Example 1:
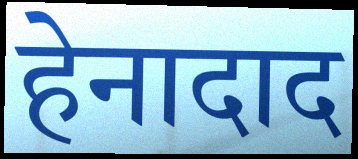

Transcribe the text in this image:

हेनादाद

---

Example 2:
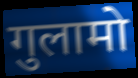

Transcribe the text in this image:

गुलामो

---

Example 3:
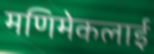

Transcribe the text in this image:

मणिमेकलाई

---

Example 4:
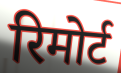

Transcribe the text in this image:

रिमोर्ट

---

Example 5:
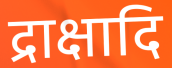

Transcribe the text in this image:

द्राक्षादि